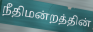
நீதிமன்றத்தின்